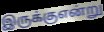
இருக்குஎன்று